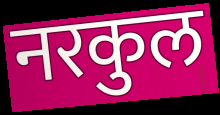
नरकुल